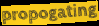
propogating